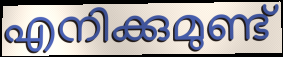
എനിക്കുമുണ്ട്